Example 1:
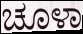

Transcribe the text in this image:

ಚೂಳಾ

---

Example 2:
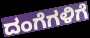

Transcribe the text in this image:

ದಂಗೆಗಳಿಗೆ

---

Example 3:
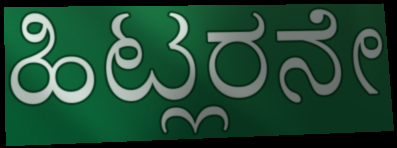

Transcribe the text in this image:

ಹಿಟ್ಲರನೇ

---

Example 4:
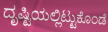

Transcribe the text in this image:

ದೃಷ್ಟಿಯಲ್ಲಿಟ್ಟುಕೊಂಡೆ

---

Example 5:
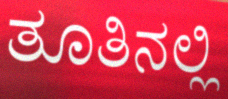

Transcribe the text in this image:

ತೂತಿನಲ್ಲಿ